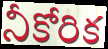
నీకోరిక